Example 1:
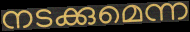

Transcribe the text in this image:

നടക്കുമെന്ന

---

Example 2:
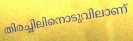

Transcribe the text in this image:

തിരച്ചിലിനൊടുവിലാണ്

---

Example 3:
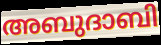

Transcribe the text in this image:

അബുദാബി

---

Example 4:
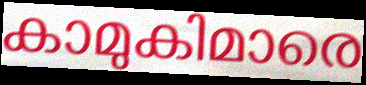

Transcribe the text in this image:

കാമുകിമാരെ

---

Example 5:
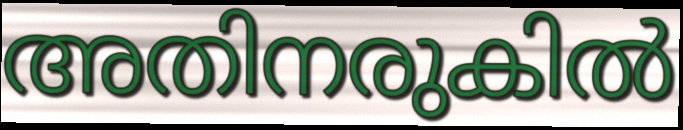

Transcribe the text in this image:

അതിനരുകിൽ